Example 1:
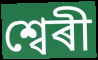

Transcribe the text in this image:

শ্বেৰী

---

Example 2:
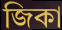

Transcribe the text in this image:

জিকা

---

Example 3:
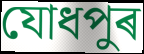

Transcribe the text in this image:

যোধপুৰ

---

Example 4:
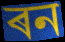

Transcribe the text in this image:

ৰন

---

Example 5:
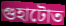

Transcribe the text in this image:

গুহাটোত